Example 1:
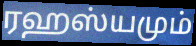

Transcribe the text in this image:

ரஹஸ்யமும்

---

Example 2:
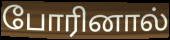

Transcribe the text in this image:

போரினால்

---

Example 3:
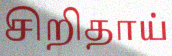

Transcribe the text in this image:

சிறிதாய்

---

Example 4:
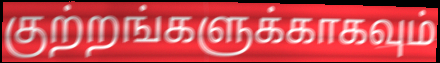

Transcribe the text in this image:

குற்றங்களுக்காகவும்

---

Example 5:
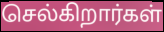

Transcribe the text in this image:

செல்கிறார்கள்